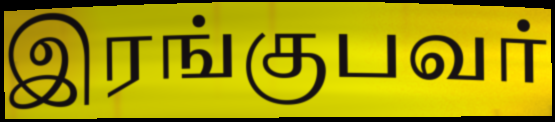
இரங்குபவர்